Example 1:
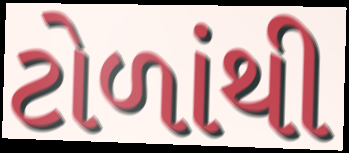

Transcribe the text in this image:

ટોળાંથી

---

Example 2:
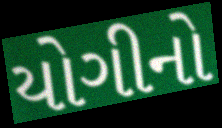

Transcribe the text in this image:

યોગીનો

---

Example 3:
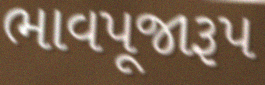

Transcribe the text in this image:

ભાવપૂજારૂપ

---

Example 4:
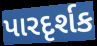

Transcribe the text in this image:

પારદૃર્શક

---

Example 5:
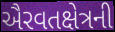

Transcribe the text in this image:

ઐરવતક્ષેત્રની